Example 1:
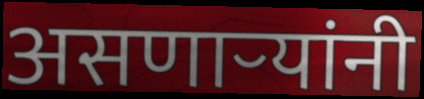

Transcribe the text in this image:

असणाऱ्यांनी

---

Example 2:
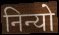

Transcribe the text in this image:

निन्यो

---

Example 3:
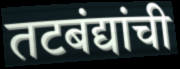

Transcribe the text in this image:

तटबंद्यांची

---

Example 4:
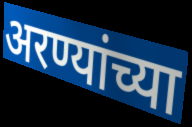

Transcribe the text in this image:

अरण्यांच्या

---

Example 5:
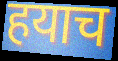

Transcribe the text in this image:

हयाच